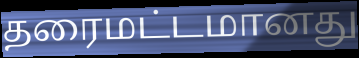
தரைமட்டமானது